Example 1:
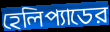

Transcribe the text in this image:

হেলিপ্যাডের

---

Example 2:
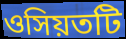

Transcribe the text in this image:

ওসিয়তটি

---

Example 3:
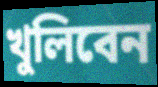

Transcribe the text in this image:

খুলিবেন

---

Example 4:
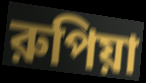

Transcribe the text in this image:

রুপিয়া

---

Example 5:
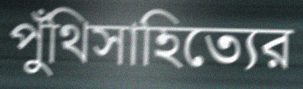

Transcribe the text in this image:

পুঁথিসাহিত্যের